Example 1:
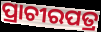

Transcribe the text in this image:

ପ୍ରାଚୀରପତ୍ର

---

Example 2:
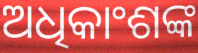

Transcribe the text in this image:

ଅଧିକାଂଶଙ୍କ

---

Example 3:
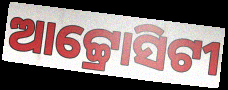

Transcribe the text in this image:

ଆଟ୍ଟ୍ରୋସିଟୀ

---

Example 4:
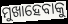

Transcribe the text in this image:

ମୁଖାହେବାକୁ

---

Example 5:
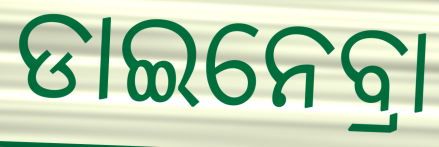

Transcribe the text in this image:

ଡାଇନେବ୍ରା